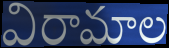
విరామాల